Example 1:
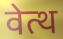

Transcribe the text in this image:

वेत्थ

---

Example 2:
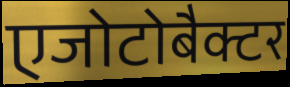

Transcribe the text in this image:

एजोटोबैक्टर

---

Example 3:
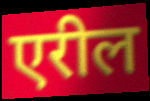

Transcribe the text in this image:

एरील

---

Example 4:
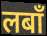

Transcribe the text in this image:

लबाँ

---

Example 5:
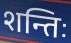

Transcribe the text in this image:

शन्तिः